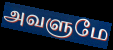
அவளுமே